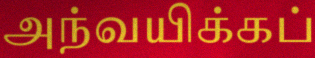
அந்வயிக்கப்